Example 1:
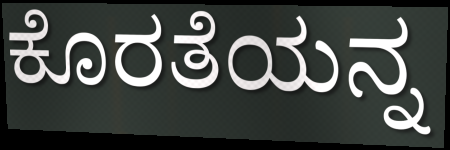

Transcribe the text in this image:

ಕೊರತೆಯನ್ನ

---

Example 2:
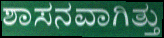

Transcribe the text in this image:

ಶಾಸನವಾಗಿತ್ತು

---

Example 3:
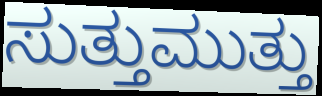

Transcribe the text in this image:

ಸುತ್ತುಮುತ್ತು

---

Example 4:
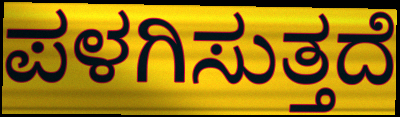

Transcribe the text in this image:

ಪಳಗಿಸುತ್ತದೆ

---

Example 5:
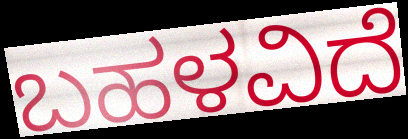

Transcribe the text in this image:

ಬಹಳವಿದೆ